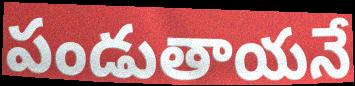
పండుతాయనే